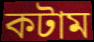
কটাম